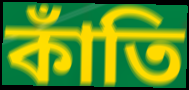
কাঁতি